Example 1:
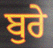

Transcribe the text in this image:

ਬੁਰੇ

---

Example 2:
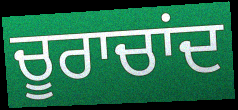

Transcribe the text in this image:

ਚੂਰਾਚਾਂਦ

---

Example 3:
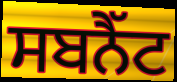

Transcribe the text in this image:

ਸਬਨੈੱਟ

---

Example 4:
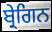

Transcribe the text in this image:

ਬ੍ਰੇਗਿਨ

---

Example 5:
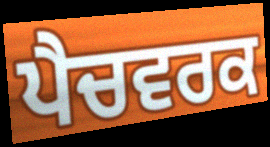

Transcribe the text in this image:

ਪੈਚਵਰਕ